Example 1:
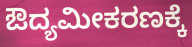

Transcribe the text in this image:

ಔದ್ಯಮೀಕರಣಕ್ಕೆ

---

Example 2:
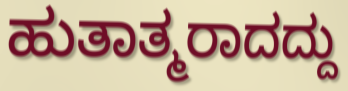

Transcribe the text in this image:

ಹುತಾತ್ಮರಾದದ್ದು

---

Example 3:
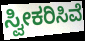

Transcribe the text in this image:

ಸ್ವೀಕರಿಸಿವೆ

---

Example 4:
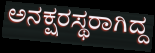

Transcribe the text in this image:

ಅನಕ್ಷರಸ್ಥರಾಗಿದ್ದ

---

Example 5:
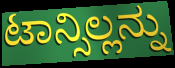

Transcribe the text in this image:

ಟಾನ್ಸಿಲ್ಲನ್ನು